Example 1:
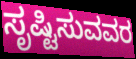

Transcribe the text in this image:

ಸೃಷ್ಟಿಸುವವರ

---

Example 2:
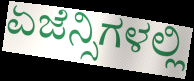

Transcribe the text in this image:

ಏಜೆನ್ಸಿಗಳಲ್ಲಿ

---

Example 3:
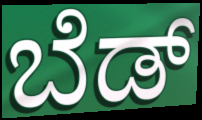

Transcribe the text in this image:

ಬೆಡ್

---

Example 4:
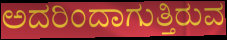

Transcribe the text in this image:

ಅದರಿಂದಾಗುತ್ತಿರುವ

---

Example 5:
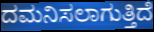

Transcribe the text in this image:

ದಮನಿಸಲಾಗುತ್ತಿದೆ